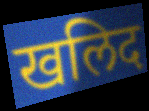
खलिद